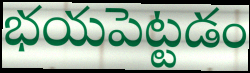
భయపెట్టడం